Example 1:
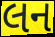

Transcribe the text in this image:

લન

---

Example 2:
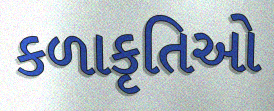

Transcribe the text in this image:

કળાકૃતિઓ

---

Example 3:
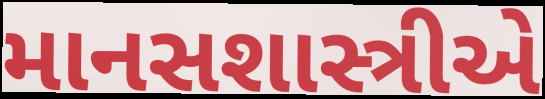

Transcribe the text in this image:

માનસશાસ્ત્રીએ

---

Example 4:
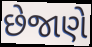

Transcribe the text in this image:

છેજાણે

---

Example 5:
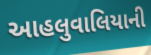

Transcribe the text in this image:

આહલુવાલિયાની